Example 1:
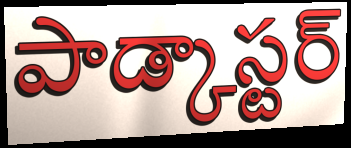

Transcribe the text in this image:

పాడ్కాస్టర్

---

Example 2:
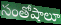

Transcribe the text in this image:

సంతోషాలూ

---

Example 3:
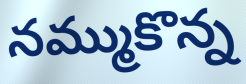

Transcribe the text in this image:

నమ్ముకొన్న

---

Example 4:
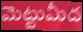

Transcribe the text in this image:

మెట్టుమీద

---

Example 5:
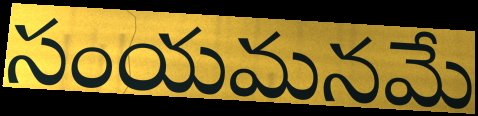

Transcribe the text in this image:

సంయమనమే